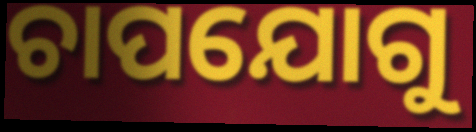
ଚାପଯୋଗୁ